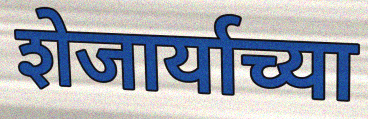
शेजार्याच्या